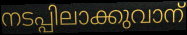
നടപ്പിലാക്കുവാന്